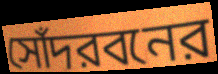
সোঁদরবনের